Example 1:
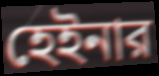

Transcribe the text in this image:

হেইনার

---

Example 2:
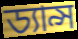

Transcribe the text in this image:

ড্যান্স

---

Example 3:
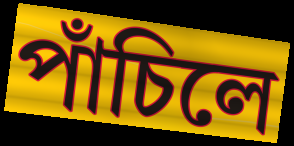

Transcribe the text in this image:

পাঁচিলে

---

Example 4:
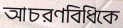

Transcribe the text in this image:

আচরণবিধিকে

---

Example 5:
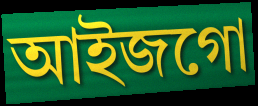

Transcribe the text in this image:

আইজগো